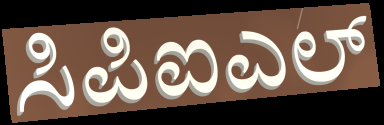
ಸಿಪಿಐಎಲ್